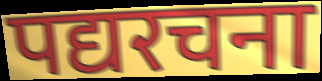
पद्यरचना